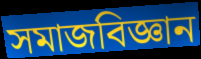
সমাজবিজ্ঞান